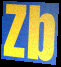
Zb